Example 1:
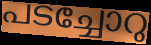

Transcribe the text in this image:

പടച്ചോറു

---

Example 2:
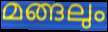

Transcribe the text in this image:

മങ്ങലും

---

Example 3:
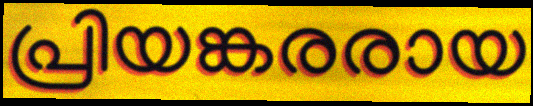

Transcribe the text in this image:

പ്രിയങ്കരരായ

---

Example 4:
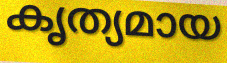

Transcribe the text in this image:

കൃത്യമായ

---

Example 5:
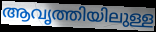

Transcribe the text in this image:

ആവൃത്തിയിലുള്ള